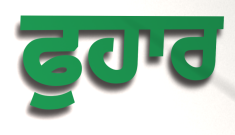
ਫੁਹਾਰ